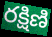
రక్షిణి